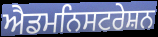
ਐਡਮਨਿਸਟਰੇਸ਼ਨ